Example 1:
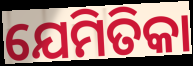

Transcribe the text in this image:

ଯେମିତିକା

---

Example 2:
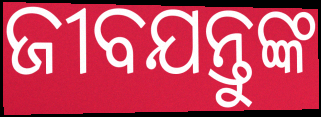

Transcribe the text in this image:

ଜୀବଯନ୍ତୁଙ୍କ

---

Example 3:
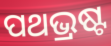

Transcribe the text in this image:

ପଥଭ୍ରଷ୍ଟ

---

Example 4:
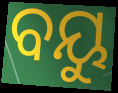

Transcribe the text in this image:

ବୟୁ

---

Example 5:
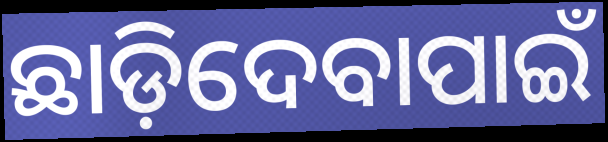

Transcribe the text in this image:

ଛାଡ଼ିଦେବାପାଇଁ